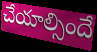
చేయాల్సిందే